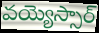
వయ్యెస్సార్